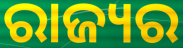
ରାଜ୍ୟର